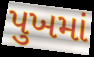
પુખમાં